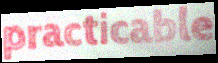
practicable